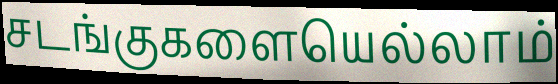
சடங்குகளையெல்லாம்